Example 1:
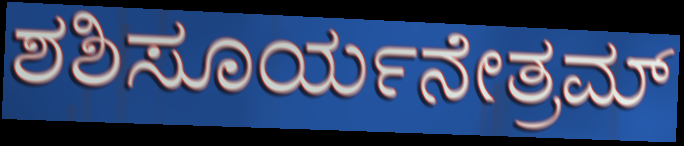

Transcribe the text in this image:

ಶಶಿಸೂರ್ಯನೇತ್ರಮ್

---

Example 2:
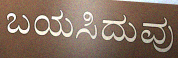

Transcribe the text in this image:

ಬಯಸಿದುವು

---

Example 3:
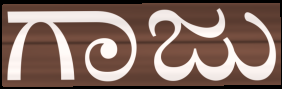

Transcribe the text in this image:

ಗಾಜು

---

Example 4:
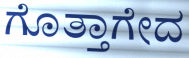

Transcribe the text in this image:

ಗೊತ್ತಾಗೇದ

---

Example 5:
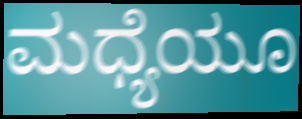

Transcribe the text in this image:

ಮಧ್ಯೆಯೂ